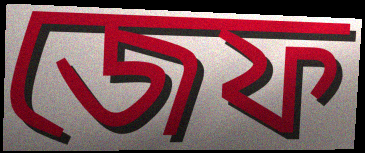
জেফ